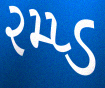
રમ્પ્ડ